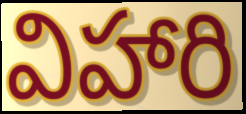
విహారి